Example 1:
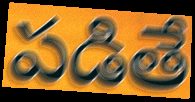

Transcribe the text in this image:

పడితే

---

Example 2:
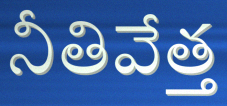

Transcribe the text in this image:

నీతివేత్త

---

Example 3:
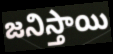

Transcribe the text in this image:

జనిస్తాయి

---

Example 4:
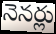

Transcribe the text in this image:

నెనర్లు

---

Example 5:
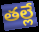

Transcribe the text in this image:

తల్లే